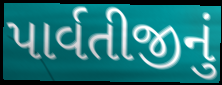
પાર્વતીજીનું